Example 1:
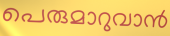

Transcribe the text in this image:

പെരുമാറുവാൻ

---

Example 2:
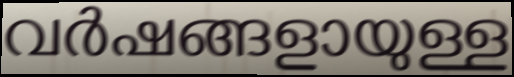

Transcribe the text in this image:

വർഷങ്ങളായുള്ള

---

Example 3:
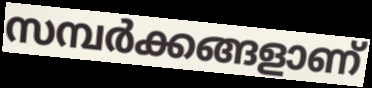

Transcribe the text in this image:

സമ്പർക്കങ്ങളാണ്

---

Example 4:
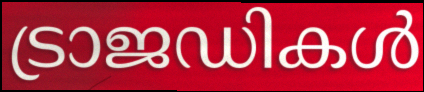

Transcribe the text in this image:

ട്രാജഡികൾ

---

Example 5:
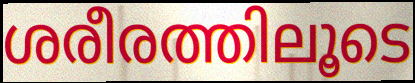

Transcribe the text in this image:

ശരീരത്തിലൂടെ